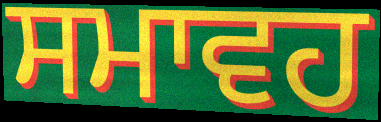
ਸਮਾਵਹ